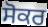
ਸੋਕਰ